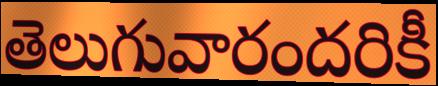
తెలుగువారందరికీ